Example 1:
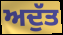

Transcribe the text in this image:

ਅਦੁੱਤ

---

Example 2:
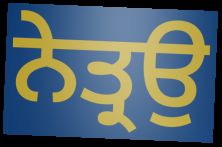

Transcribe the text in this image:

ਨੇਤ੍ਰਉ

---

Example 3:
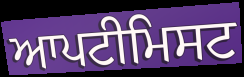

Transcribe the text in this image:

ਆਪਟੀਮਿਸਟ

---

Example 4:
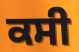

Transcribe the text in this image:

ਕਸੀ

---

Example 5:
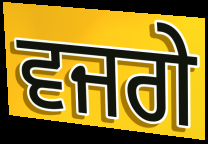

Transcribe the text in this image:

ਵਜਗੇ